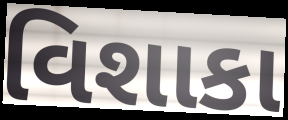
વિશાકા